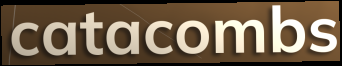
catacombs